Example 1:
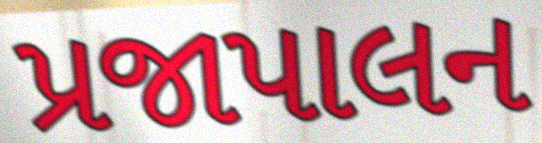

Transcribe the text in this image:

પ્રજાપાલન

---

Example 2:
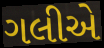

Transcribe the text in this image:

ગલીએ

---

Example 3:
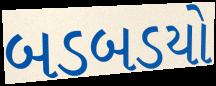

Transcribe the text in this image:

બડબડયો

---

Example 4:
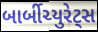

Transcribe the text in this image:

બાર્બીચ્યુરેટ્સ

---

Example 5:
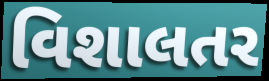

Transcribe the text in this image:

વિશાલતર